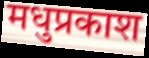
मधुप्रकाश